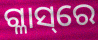
ଗ୍ଳାସ୍‌ରେ